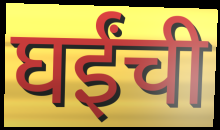
घईंची